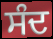
ਸੰਦ